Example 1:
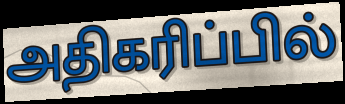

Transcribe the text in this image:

அதிகரிப்பில்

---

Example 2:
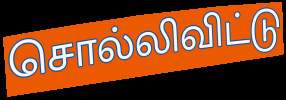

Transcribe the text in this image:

சொல்லிவிட்டு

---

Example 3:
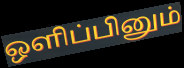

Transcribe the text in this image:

ஒளிப்பினும்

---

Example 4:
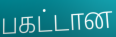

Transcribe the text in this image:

பகட்டான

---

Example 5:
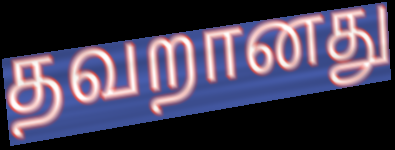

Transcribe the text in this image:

தவறானது